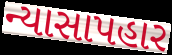
ન્યાસાપહાર